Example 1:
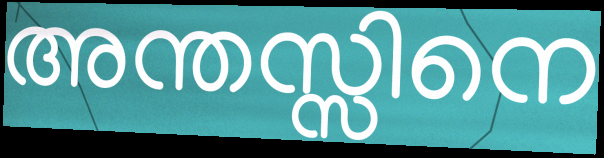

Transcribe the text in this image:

അന്തസ്സിനെ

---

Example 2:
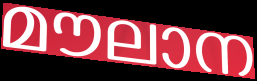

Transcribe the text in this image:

മൗലാന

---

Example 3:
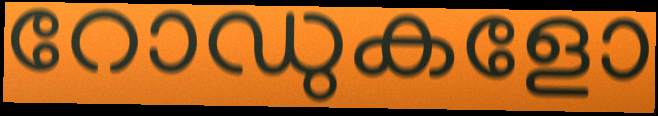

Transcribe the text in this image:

റോഡുകളോ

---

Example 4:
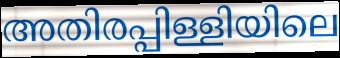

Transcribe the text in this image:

അതിരപ്പിള്ളിയിലെ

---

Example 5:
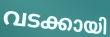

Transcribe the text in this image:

വടക്കായി